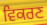
ਵਿਕਰਣ